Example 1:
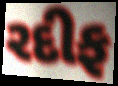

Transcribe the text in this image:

રદીફ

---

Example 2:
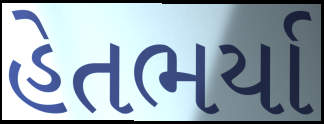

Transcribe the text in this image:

હેતભર્યા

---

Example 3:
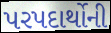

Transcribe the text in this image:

પરપદાર્થોની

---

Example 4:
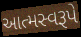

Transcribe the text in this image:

આત્મસ્વરૂપે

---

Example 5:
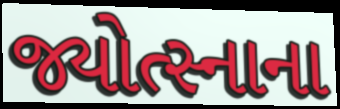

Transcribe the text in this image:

જ્યોત્સ્નાના